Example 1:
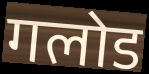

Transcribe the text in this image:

गलोड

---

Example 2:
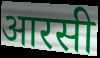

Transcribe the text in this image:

आरसी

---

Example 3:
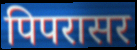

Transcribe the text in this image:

पिपरासर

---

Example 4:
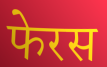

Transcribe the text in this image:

फेरस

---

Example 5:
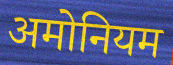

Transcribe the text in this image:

अमोनियम